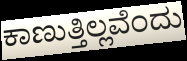
ಕಾಣುತ್ತಿಲ್ಲವೆಂದು